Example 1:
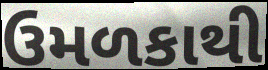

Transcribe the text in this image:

ઉમળકાથી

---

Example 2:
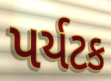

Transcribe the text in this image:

પર્યટક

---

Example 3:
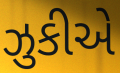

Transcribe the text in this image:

ઝુકીએ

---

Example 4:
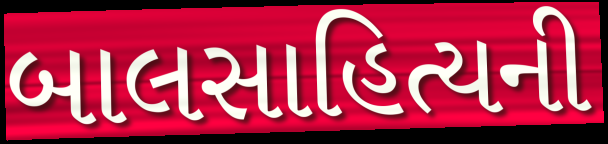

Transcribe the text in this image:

બાલસાહિત્યની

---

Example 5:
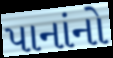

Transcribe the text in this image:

પાનાંનો